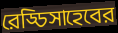
রেড্ডিসাহেবের